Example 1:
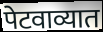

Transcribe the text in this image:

पेटवाव्यात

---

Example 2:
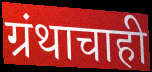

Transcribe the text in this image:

ग्रंथाचाही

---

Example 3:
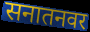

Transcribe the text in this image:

सनातनवर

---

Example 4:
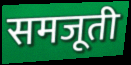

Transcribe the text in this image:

समजूती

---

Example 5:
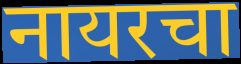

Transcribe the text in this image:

नायरचा